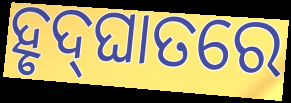
ହୃଦ୍‌ଘାତରେ